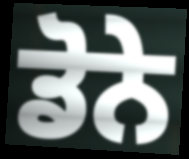
ਡੋਨੇ